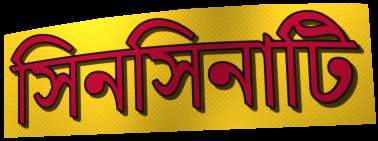
সিনসিনাটি